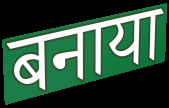
बनाया